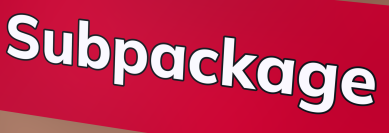
Subpackage